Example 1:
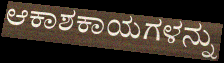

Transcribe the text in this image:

ಆಕಾಶಕಾಯಗಳನ್ನು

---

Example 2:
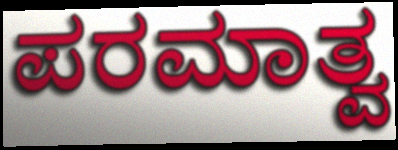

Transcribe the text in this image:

ಪರಮಾತ್ವ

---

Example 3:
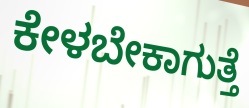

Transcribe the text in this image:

ಕೇಳಬೇಕಾಗುತ್ತೆ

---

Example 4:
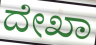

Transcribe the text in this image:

ದೇಖಾ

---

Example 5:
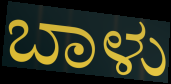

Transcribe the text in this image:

ಬಾಳು